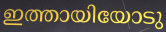
ഇത്തായിയോടു